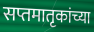
सप्तमातृकांच्या